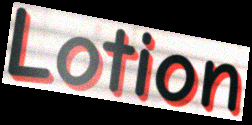
Lotion